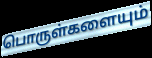
பொருள்களையும்